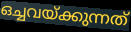
ഒച്ചവയ്ക്കുന്നത്